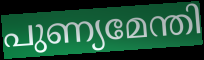
പുണ്യമേന്തി